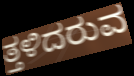
ತ್ತಳಿದರುವ